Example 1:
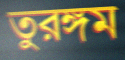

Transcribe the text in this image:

তুরঙ্গম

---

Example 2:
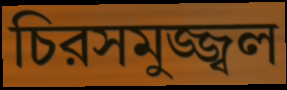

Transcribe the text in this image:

চিরসমুজ্জ্বল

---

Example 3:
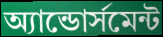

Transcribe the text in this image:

অ্যান্ডোর্সমেন্ট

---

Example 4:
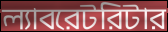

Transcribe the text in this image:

ল্যাবরেটরিটার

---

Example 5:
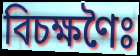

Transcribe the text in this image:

বিচক্ষণৈঃ